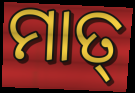
ମାତ୍